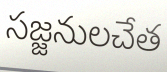
సజ్జనులచేత